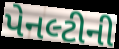
પેનલ્ટીની